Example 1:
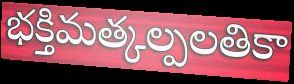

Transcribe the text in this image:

భక్తిమత్కల్పలతికా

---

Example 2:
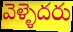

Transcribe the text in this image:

వెళ్ళెదరు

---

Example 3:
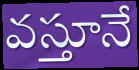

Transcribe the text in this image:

వస్తూనే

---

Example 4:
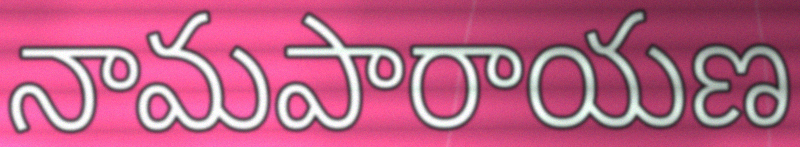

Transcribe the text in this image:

నామపారాయణ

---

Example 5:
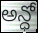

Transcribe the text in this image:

అన్ధో